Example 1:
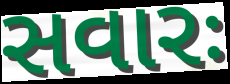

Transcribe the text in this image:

સવારઃ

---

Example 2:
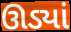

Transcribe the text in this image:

ઊડ્યાં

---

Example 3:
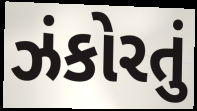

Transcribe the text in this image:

ઝંકોરતું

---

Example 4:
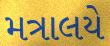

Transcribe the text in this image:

મત્રાલયે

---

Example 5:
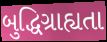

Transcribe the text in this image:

બુદ્ધિગ્રાહ્યતા